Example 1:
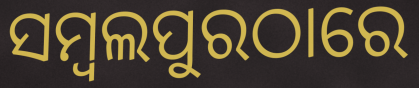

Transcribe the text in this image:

ସମ୍ବଲପୁରଠାରେ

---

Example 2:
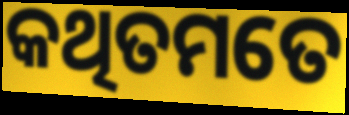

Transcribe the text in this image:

କଥିତମତେ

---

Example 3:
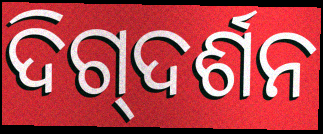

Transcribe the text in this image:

ଦିଗ୍‌ଦର୍ଶନ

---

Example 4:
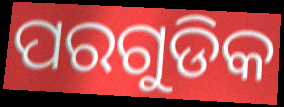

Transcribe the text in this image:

ପରଗୁଡିକ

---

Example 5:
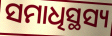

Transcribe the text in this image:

ସମାଧିସ୍ଥସ୍ୟ